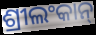
ଶ୍ରୀଲଂକାନ୍